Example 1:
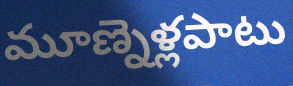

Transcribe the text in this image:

మూణ్నెళ్లపాటు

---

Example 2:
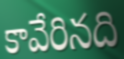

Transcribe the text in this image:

కావేరినది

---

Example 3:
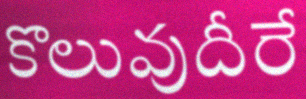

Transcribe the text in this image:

కొలువుదీరే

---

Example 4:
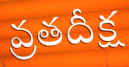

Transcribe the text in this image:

వ్రతదీక్ష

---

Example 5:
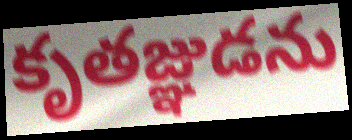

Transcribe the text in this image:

కృతజ్ఞుడను